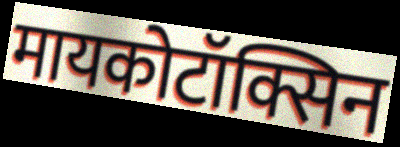
मायकोटॉक्सिन